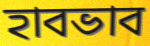
হাবভাব